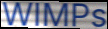
WIMPs